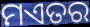
ମଏତର